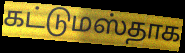
கட்டுமஸ்தாக